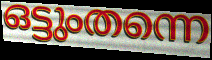
ഒട്ടുംതന്നെ